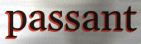
passant